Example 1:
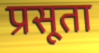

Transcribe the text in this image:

प्रसूता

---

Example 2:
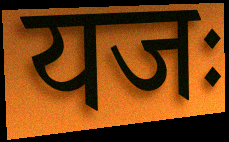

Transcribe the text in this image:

यजः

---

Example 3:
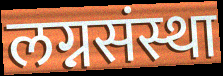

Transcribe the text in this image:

लग्नसंस्था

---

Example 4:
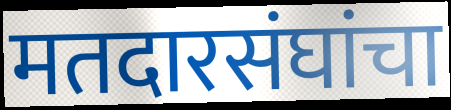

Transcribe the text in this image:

मतदारसंघांचा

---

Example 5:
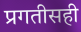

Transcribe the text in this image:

प्रगतीसही